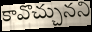
కావొచ్చునని